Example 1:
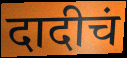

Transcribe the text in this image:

दादीचं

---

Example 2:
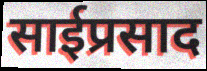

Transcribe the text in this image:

साईप्रसाद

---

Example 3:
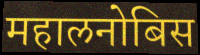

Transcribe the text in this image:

महालनोबिस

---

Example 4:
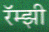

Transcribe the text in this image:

रॅम्झी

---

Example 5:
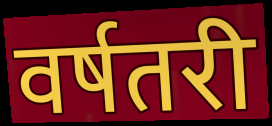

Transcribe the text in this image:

वर्षतरी